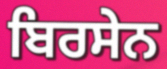
ਬਿਰਸੇਨ